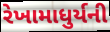
રેખામાધુર્યની